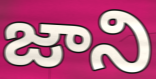
జాని